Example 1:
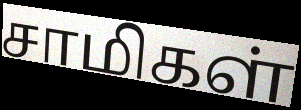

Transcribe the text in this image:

சாமிகள்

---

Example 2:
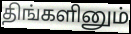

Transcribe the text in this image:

திங்களினும்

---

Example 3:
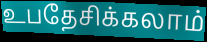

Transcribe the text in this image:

உபதேசிக்கலாம்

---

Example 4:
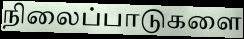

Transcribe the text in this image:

நிலைப்பாடுகளை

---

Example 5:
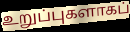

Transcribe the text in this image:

உறுப்புகளாகப்